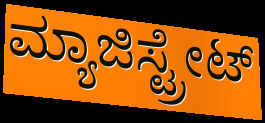
ಮ್ಯಾಜಿಸ್ಟ್ರೇಟ್